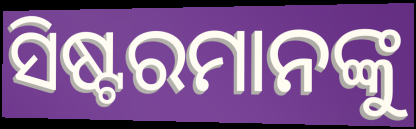
ସିଷ୍ଟରମାନଙ୍କୁ